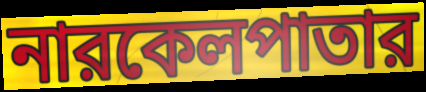
নারকেলপাতার